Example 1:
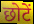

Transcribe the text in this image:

छोटें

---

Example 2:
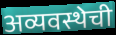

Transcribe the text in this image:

अव्यवस्थेची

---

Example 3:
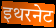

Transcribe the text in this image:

इथरनेट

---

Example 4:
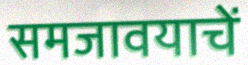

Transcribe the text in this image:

समजावयाचें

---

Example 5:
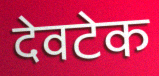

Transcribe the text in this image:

देवटेक